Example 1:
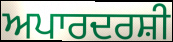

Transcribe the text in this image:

ਅਪਾਰਦਰਸ਼ੀ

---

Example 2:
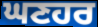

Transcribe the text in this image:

ਘਣਹਰ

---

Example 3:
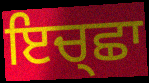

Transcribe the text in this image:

ਇਚ੍ਛਾ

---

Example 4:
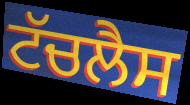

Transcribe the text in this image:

ਟੱਚਲੈਸ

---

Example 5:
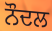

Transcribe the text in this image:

ਨੌਦਲ